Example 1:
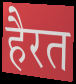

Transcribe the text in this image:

हैरत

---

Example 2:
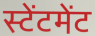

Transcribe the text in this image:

स्टेंटमेंट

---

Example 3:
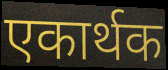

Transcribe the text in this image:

एकार्थक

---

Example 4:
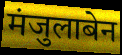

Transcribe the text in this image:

मंजुलाबेन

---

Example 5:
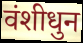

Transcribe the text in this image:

वंशीधुन